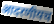
आदरणीयच